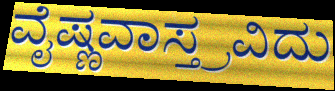
ವೈಷ್ಣವಾಸ್ತ್ರವಿದು